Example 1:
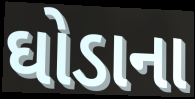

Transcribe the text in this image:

ઘોડાના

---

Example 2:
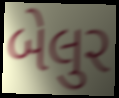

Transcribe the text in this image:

બેલુર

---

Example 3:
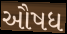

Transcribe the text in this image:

ઔષધ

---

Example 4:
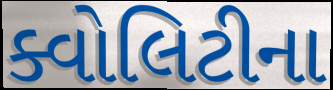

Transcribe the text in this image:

ક્વોલિટીના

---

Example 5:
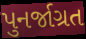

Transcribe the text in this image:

પુનર્જાગ્રત